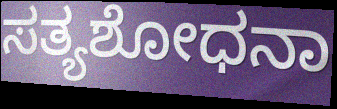
ಸತ್ಯಶೋಧನಾ